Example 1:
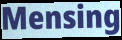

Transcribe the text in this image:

Mensing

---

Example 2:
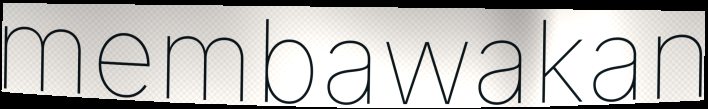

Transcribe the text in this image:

membawakan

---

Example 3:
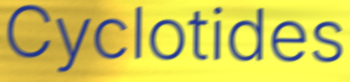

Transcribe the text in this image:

Cyclotides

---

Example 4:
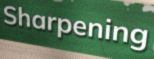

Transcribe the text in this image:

Sharpening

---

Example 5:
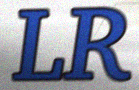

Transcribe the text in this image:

LR